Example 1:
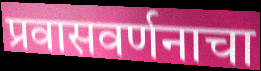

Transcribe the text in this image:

प्रवासवर्णनाचा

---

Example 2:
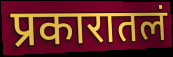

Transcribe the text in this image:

प्रकारातलं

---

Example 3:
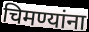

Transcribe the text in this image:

चिमण्यांना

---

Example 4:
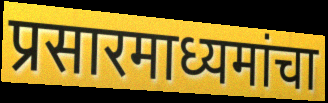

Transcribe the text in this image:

प्रसारमाध्यमांचा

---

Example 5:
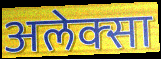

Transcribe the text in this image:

अलेक्‍सा